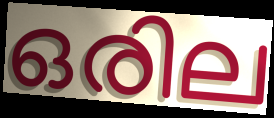
ഒരില